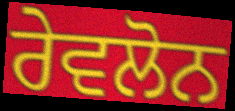
ਰੇਵਲੋਨ